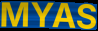
MYAS